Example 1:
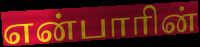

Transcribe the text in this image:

என்பாரின்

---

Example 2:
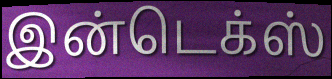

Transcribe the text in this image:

இன்டெக்ஸ்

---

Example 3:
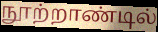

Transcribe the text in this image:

நூற்றாண்டில்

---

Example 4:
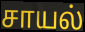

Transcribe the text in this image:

சாயல்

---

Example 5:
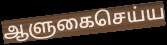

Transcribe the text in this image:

ஆளுகைசெய்ய